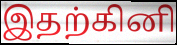
இதற்கினி